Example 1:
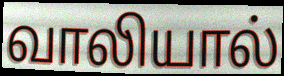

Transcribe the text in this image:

வாலியால்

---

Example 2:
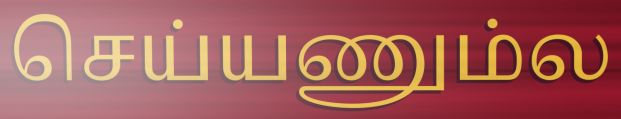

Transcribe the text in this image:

செய்யணும்ல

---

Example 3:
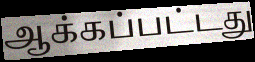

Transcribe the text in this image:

ஆக்கப்பட்டது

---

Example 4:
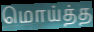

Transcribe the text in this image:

மொய்த்த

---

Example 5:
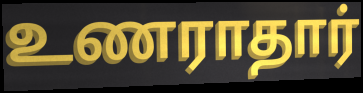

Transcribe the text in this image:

உணராதார்